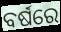
ବର୍ଷରେ